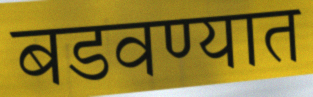
बडवण्यात